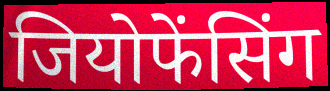
जियोफेंसिंग